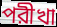
পরীখা